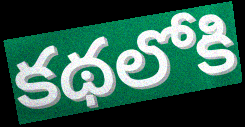
కథలోకి